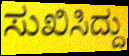
ಸುಖಿಸಿದ್ದು